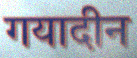
गयादीन